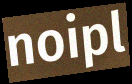
noipl